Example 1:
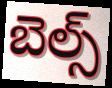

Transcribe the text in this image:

బెల్స్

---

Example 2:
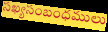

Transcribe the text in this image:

సఖ్యసంబంధములు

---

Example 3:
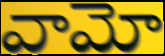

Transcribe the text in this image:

వామో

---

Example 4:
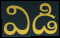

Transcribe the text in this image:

విడి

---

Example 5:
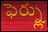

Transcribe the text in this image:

ఫెర్న్లు